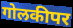
गोलकीपर